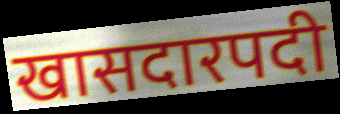
खासदारपदी